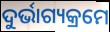
ଦୁର୍ଭାଗ୍ୟକ୍ରମେ